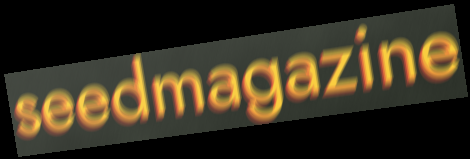
seedmagazine